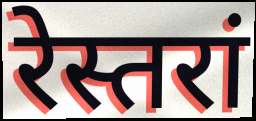
रेस्तरां